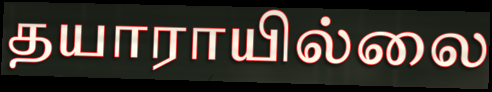
தயாராயில்லை